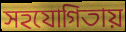
সহযোগিতায়